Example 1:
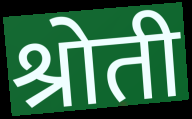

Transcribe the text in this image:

श्रोती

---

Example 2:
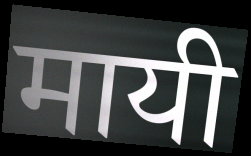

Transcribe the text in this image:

मायी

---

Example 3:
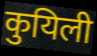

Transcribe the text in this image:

कुयिली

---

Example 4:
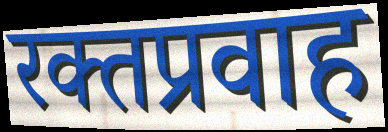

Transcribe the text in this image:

रक्तप्रवाह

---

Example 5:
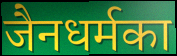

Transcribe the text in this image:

जैनधर्मका